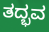
ತದ್ಭವ